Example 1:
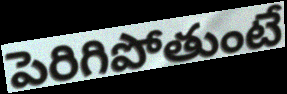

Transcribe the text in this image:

పెరిగిపోతుంటే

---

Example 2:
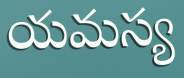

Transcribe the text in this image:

యమస్య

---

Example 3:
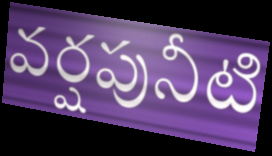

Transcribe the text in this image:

వర్షపునీటి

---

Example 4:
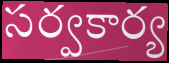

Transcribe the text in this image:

సర్వకార్య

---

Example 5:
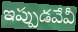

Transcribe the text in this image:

ఇప్పుడవేవీ